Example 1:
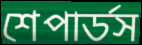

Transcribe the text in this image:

শেপার্ডস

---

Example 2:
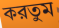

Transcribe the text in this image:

করতুম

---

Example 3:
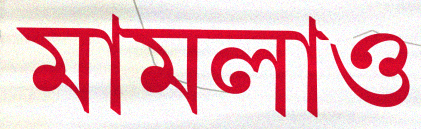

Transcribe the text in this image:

মামলাও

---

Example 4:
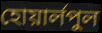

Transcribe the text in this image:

হোয়ার্লপুল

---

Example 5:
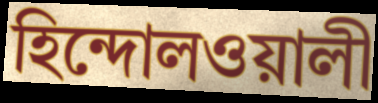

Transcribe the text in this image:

হিন্দোলওয়ালী